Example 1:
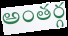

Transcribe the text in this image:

అంతర్గ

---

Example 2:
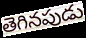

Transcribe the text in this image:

తెగినపుడు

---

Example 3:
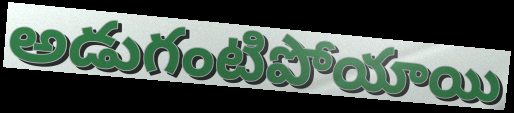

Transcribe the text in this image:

అడుగంటిపోయాయి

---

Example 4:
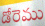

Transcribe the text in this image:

డోరెము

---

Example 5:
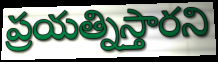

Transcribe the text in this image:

ప్రయత్నిస్తారని